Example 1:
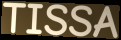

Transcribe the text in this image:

TISSA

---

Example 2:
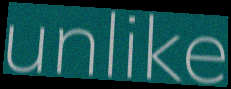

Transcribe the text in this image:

unlike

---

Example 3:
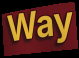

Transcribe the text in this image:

Way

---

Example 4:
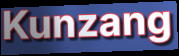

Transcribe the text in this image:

Kunzang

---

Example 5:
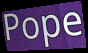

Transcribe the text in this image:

Pope